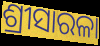
ଶ୍ରୀସାରଳା